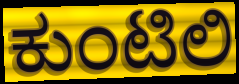
ಕುಂಟಿಲಿ